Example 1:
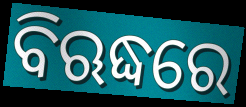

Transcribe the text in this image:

ବିଋଦ୍ଧରେ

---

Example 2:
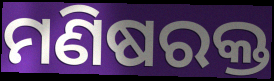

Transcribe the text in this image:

ମଣିଷରକ୍ତ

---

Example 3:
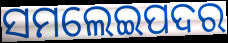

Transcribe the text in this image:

ସମଲେଇପଦର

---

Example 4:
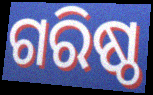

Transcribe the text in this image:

ଗରିଷ୍ଠ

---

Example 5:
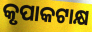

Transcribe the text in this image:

କୃପାକଟାକ୍ଷ